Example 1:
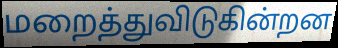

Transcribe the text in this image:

மறைத்துவிடுகின்றன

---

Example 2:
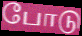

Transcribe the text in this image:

போடு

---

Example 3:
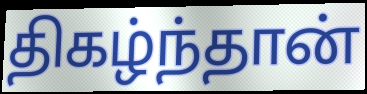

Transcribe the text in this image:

திகழ்ந்தான்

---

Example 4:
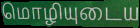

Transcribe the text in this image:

மொழியுடைய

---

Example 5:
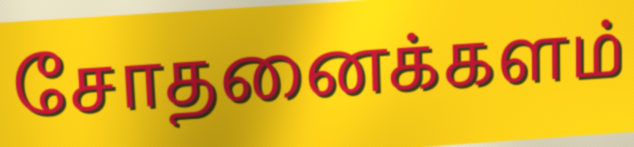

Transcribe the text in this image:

சோதனைக்களம்